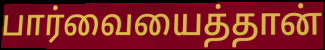
பார்வையைத்தான்